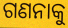
ଗଣନାକୁ